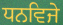
ਧਨਵਿਜੇ